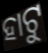
ହାଟୁ